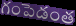
గంపెడంత